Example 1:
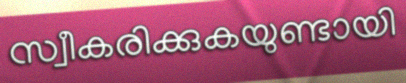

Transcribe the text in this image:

സ്വീകരിക്കുകയുണ്ടായി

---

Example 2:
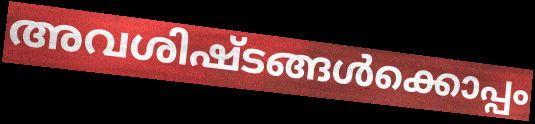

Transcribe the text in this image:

അവശിഷ്ടങ്ങൾക്കൊപ്പം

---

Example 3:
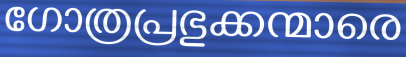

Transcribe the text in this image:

ഗോത്രപ്രഭുക്കന്മാരെ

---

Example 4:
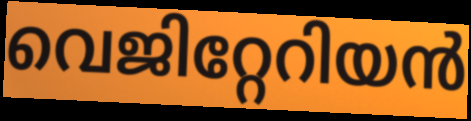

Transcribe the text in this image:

വെജിറ്റേറിയൻ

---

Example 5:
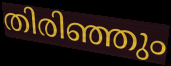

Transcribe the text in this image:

തിരിഞ്ഞും